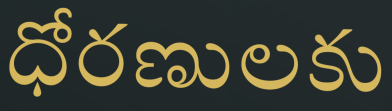
ధోరణులకు